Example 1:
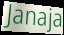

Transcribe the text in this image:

Janaja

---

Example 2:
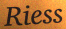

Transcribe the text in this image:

Riess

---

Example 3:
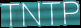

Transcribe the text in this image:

TNTP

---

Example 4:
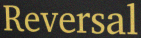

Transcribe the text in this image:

Reversal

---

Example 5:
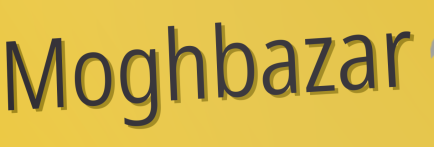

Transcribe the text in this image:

Moghbazar